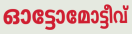
ഓട്ടോമോട്ടീവ്